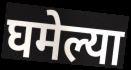
घमेल्या